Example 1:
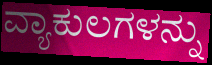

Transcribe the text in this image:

ವ್ಯಾಕುಲಗಳನ್ನು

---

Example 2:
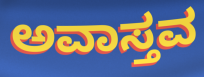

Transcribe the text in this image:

ಅವಾಸ್ತವ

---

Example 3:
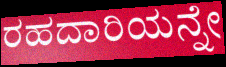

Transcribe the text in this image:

ರಹದಾರಿಯನ್ನೇ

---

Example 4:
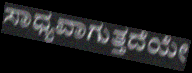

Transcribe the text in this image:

ಸಾಧ್ಯವಾಗುತ್ತದೆಯೇ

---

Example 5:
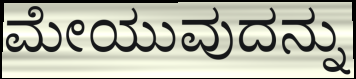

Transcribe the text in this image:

ಮೇಯುವುದನ್ನು